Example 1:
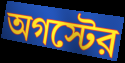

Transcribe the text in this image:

অগস্টের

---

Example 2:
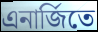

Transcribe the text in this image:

এনার্জিতে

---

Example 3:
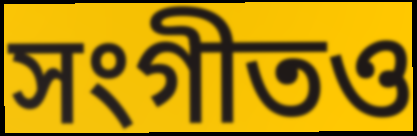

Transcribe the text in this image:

সংগীতও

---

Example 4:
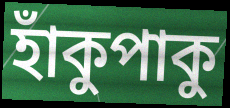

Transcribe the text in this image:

হাঁকুপাকু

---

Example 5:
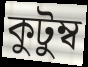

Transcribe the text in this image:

কুটুম্ব